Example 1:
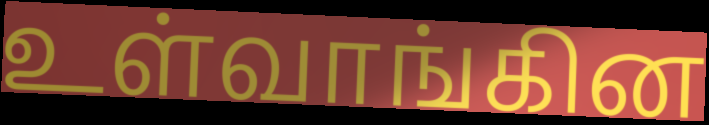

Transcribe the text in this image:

உள்வாங்கின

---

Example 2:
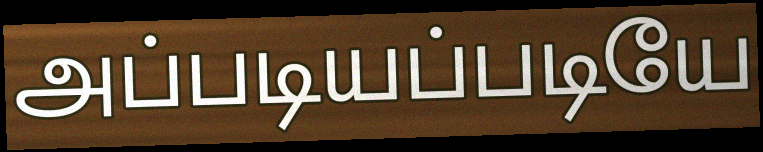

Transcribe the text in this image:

அப்படியப்படியே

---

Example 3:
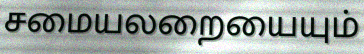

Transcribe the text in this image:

சமையலறையையும்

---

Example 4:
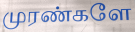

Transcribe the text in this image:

முரண்களே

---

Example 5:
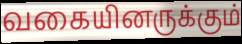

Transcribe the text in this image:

வகையினருக்கும்